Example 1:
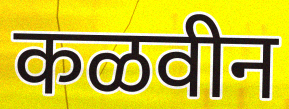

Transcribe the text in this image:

कळवीन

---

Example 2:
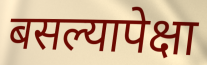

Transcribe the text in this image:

बसल्यापेक्षा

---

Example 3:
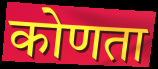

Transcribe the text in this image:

कोणता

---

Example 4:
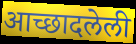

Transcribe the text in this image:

आच्छादलेली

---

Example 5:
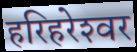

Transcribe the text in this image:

हरिहरेश्वर